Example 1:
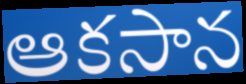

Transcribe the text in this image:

ఆకసాన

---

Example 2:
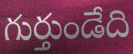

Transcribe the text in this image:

గుర్తుండేది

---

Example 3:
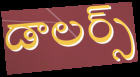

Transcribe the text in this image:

డాలర్స్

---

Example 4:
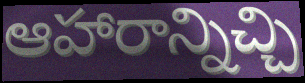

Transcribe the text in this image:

ఆహారాన్నిచ్చి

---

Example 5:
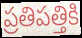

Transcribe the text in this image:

ప్రతిపత్తికి